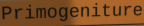
Primogeniture